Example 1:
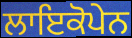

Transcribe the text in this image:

ਲਾਇਕੋਪੇਨ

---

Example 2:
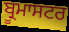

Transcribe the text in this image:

ਬ੍ਰੂਮਾਸਟਰ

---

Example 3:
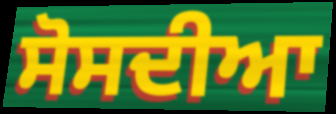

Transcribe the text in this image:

ਸੋਸਦੀਆ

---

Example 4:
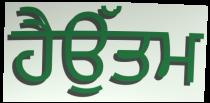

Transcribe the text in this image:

ਹੈਉੱਤਮ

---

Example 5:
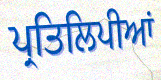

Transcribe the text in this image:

ਪ੍ਰਤਿਲਿਪੀਆਂ